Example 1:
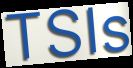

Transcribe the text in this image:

TSIs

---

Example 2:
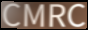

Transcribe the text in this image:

CMRC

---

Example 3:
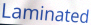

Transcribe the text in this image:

Laminated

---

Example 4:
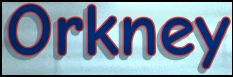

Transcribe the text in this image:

Orkney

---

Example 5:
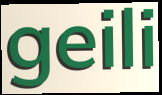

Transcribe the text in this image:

geili